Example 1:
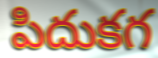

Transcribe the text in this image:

పిదుకగ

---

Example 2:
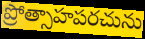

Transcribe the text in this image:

ప్రోత్సాహపరచును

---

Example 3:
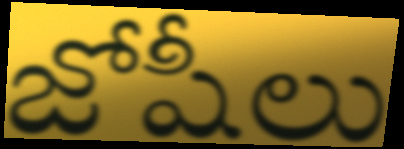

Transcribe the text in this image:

జోషీలు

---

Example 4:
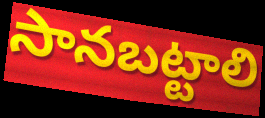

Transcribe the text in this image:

సానబట్టాలి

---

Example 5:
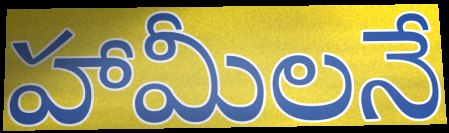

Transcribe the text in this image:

హామీలనే